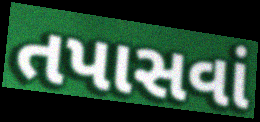
તપાસવાં